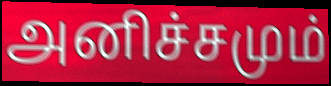
அனிச்சமும்